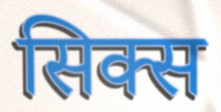
सिक्स